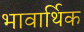
भावार्थिक